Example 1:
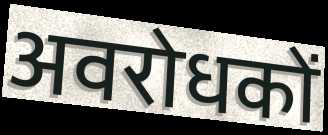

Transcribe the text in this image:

अवरोधकों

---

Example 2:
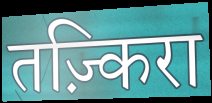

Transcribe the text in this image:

तज़्किरा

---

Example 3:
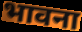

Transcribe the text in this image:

भावना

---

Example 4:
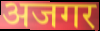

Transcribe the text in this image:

अजगर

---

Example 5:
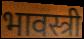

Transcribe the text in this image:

भावस्त्री